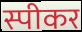
स्‍पीकर